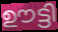
ഊട്ടി